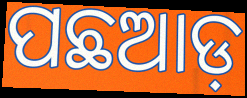
ପଛଆଡ଼